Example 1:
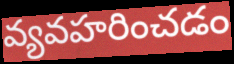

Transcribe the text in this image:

వ్యవహరించడం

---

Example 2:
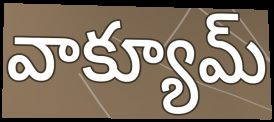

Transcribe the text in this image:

వాక్యూమ్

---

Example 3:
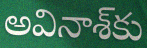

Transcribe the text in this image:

అవినాశ్‌కు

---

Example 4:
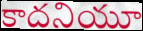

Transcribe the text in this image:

కాదనియూ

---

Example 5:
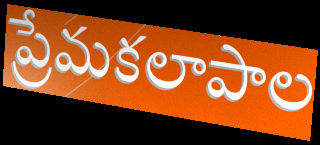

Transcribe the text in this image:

ప్రేమకలాపాల